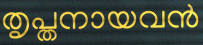
തൃപ്തനായവൻ